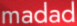
madad